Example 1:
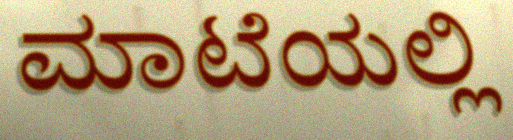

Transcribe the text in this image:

ಮಾಟೆಯಲ್ಲಿ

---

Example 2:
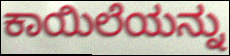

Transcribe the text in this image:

ಕಾಯಿಲೆಯನ್ನು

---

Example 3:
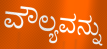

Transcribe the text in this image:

ವೌಲ್ಯವನ್ನು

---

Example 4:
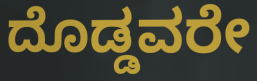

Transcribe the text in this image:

ದೊಡ್ಡವರೇ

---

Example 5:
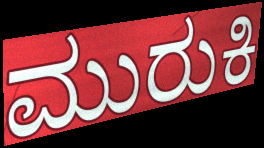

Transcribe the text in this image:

ಮುರುಕಿ